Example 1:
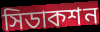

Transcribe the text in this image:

সিডাকশন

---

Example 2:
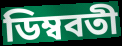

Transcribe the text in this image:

ডিম্ববতী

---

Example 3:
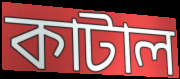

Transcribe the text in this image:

কাটাল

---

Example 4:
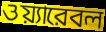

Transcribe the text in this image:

ওয়্যারেবল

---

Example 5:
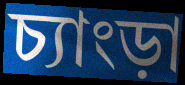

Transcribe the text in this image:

চ্যাংড়া